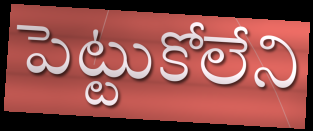
పెట్టుకోలేని